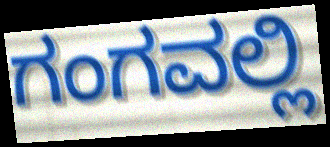
ಗಂಗವಲ್ಲಿ